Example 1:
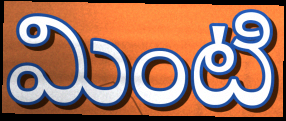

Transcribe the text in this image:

మింటి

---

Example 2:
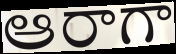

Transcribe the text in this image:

ఆరాగా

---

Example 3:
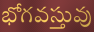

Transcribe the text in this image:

భోగవస్తువు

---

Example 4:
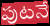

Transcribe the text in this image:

పుటనే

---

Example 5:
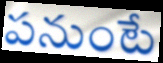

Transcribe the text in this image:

పనుంటే